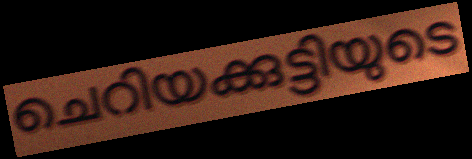
ചെറിയക്കുട്ടിയുടെ